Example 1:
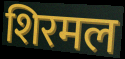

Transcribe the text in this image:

शिरमल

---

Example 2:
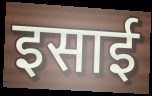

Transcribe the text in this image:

इसाई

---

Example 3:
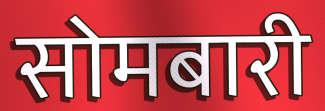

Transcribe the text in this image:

सोमबारी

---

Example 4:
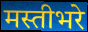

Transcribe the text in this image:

मस्तीभरे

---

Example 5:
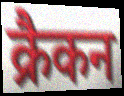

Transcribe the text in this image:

क्रैकन